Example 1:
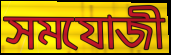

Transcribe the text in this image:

সমযোজী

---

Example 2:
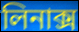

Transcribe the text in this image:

লিনাক্স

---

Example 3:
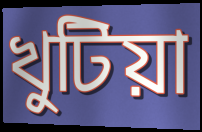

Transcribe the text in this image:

খুটিয়া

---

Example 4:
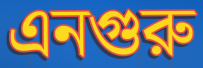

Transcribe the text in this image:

এনগুরু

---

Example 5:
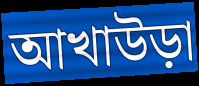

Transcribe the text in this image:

আখাউড়া